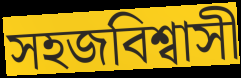
সহজবিশ্বাসী